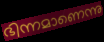
ഭിന്നമാണെന്നു